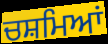
ਚਸ਼ਮਿਆਂ